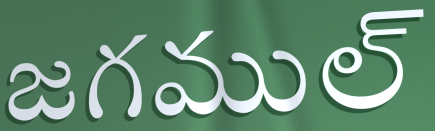
జగముల్